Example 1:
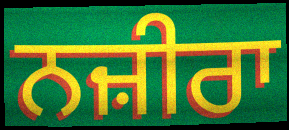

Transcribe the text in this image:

ਨਜ਼ੀਰਾ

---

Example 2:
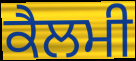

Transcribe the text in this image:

ਕੈਲਮੀ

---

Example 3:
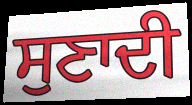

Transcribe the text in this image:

ਸੁਣਾਦੀ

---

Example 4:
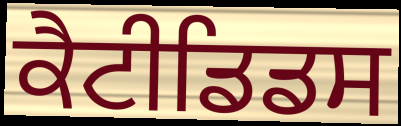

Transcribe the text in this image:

ਕੈਟੀਡਿਡਸ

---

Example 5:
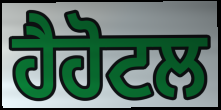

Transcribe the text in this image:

ਹੈਹੋਟਲ